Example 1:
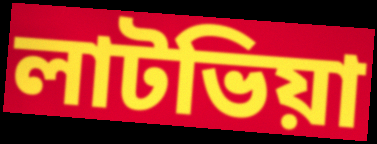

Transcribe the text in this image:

লাটভিয়া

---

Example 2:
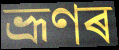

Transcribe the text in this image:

ভ্ৰূণৰ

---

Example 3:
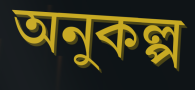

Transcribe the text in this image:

অনুকল্প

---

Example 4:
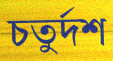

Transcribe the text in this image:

চতুৰ্দশ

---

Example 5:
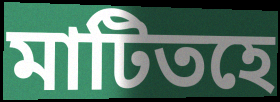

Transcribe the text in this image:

মাটিতহে